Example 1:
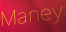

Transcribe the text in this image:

Maney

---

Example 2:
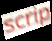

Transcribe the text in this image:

scrip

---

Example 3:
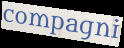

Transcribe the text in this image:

compagni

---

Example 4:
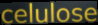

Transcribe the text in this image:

celulose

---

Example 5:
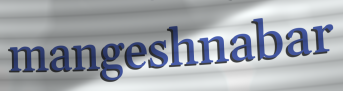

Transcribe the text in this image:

mangeshnabar